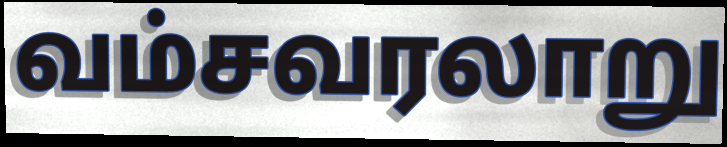
வம்சவரலாறு